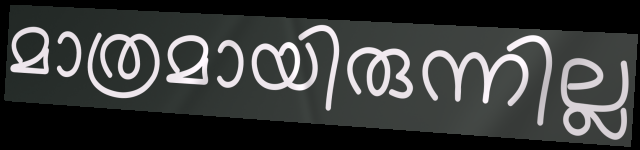
മാത്രമായിരുന്നില്ല